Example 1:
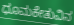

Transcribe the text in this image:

ಧೂಮಕೇತುವಿನ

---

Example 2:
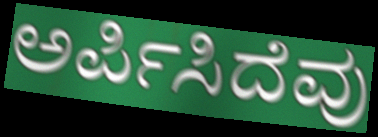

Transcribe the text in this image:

ಅರ್ಪಿಸಿದೆವು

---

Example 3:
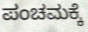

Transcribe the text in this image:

ಪಂಚಮಕ್ಕೆ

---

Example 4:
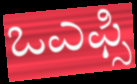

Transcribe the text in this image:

ಒಎಫ್ಸಿ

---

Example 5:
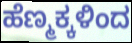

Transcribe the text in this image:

ಹೆಣ್ಮಕ್ಕಳಿಂದ